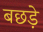
बछड़े